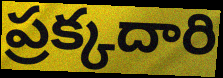
ప్రక్కదారి